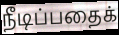
நீடிப்பதைக்